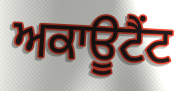
ਅਕਾਊਟੈਂਟ